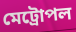
মেট্রোপল